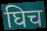
घिच